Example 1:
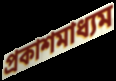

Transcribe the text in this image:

প্রকাশমাধ্যম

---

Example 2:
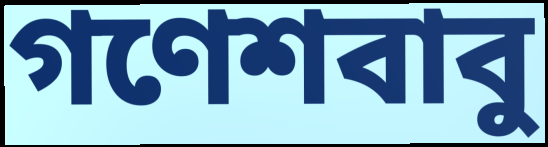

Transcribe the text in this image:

গণেশবাবু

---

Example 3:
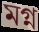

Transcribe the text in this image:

মগ্ন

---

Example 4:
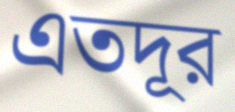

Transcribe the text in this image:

এতদূর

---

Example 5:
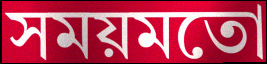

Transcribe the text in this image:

সময়মতো